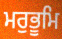
ਮਰੁਭੂਮਿ